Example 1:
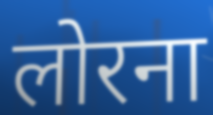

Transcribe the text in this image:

लोरना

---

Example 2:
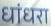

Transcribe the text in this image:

धांधरा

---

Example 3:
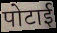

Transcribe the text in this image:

पोटाई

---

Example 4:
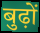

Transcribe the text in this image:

बुढ़ों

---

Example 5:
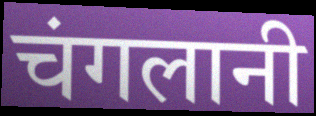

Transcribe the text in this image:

चंगलानी